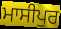
ਮਾਸੀਪੁਰ